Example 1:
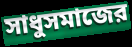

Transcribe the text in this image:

সাধুসমাজের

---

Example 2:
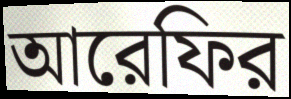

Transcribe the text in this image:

আরেফির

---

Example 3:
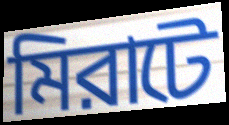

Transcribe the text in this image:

মিরাটে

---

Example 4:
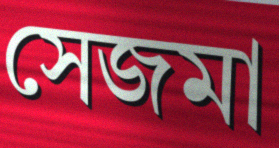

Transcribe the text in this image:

সেজমা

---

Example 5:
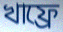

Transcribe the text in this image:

খাফ্রে